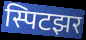
स्पिटझर